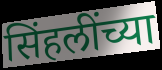
सिंहलींच्या